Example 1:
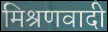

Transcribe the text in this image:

मिश्रणवादी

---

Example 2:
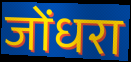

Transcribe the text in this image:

जोंधरा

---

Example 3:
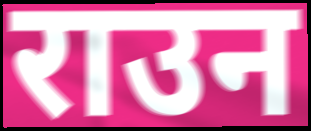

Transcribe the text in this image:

राउन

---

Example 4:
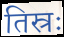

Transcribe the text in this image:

तिस्रः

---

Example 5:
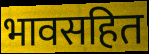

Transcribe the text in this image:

भावसहित